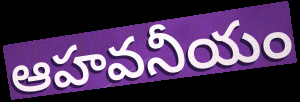
ఆహవనీయం